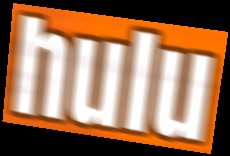
hulu